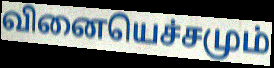
வினையெச்சமும்